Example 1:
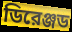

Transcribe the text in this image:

ডিরেঞ্জড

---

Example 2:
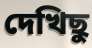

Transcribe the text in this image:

দেখিছু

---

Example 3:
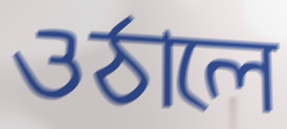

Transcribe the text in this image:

ওঠালে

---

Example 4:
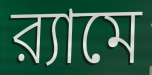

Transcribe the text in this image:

র‍্যামে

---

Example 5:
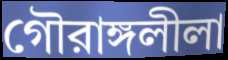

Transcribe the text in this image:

গৌরাঙ্গলীলা